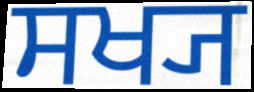
ਸਖ੍ਯ